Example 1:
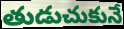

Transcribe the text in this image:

తుడుచుకునే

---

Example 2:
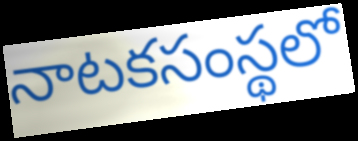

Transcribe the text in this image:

నాటకసంస్థలో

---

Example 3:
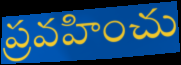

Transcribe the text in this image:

ప్రవహించు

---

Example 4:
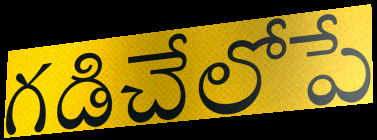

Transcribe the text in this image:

గడిచేలోపే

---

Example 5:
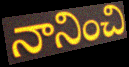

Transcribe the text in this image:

నానించి